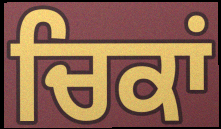
ਚਿਕਾਂ